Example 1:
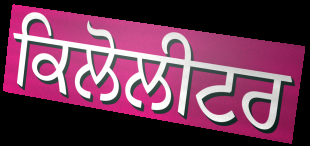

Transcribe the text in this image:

ਕਿਲੋਲੀਟਰ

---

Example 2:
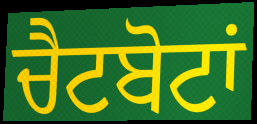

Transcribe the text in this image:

ਚੈਟਬੋਟਾਂ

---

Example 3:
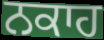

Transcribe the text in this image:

ਨਕਾਹ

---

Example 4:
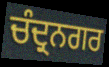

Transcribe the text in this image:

ਚੰਦ੍ਰਨਗਰ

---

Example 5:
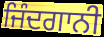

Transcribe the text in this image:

ਜਿੰਦਗਾਨੀ